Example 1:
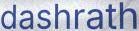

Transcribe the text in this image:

dashrath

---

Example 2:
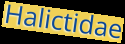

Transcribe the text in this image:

Halictidae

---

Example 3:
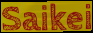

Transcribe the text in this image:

Saikei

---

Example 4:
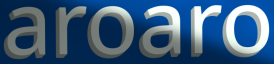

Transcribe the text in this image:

aroaro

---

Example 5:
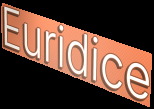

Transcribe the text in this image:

Euridice